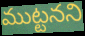
ముట్టనని